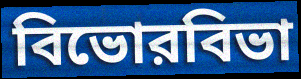
বিভোরবিভা